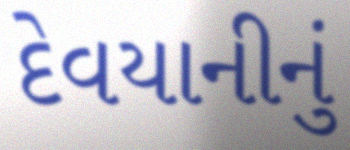
દેવયાનીનું